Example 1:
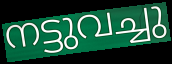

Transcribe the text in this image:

നട്ടുവച്ചു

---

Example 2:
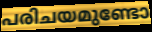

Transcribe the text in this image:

പരിചയമുണ്ടോ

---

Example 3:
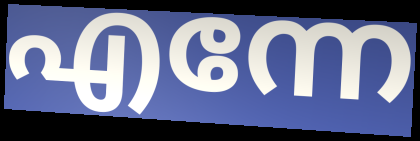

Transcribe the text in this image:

എന്നേ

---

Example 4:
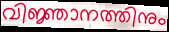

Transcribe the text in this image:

വിജ്ഞാനത്തിനും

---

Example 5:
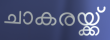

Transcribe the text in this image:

ചാകരയ്ക്ക്